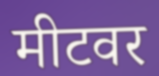
मीटवर